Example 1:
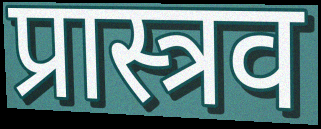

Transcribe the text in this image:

प्रास्त्रव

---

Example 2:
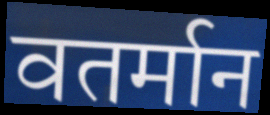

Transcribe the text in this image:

वतर्मान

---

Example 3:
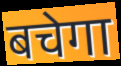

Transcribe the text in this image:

बचेगा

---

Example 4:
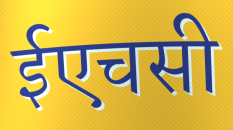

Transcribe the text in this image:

ईएचसी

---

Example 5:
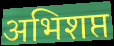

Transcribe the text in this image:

अभिशप्त